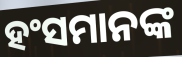
ହଂସମାନଙ୍କ